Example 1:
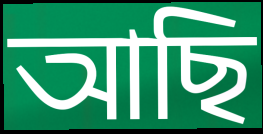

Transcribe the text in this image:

আছি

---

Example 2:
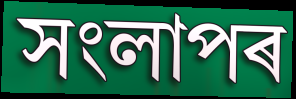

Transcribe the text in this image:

সংলাপৰ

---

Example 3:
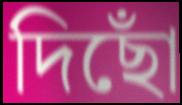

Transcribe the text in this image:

দিছোঁ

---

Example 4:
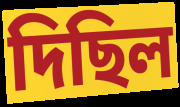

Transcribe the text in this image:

দিছিল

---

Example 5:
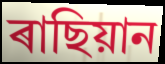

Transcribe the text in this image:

ৰাছিয়ান